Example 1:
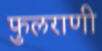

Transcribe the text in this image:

फुलराणी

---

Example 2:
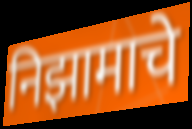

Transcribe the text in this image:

निझामाचे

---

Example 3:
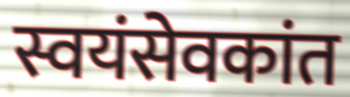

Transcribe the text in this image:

स्वयंसेवकांत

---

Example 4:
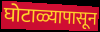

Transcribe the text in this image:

घोटाळ्यापासून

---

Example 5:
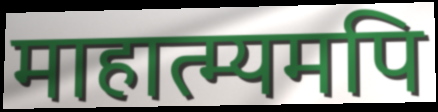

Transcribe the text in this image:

माहात्म्यमपि